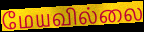
மேயவில்லை